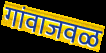
गांवाजवळ